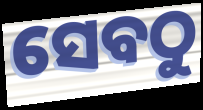
ସେବଠୁ